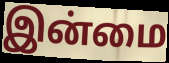
இன்மை